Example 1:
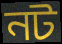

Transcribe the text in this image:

নট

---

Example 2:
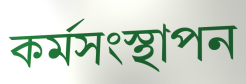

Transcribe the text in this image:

কৰ্মসংস্থাপন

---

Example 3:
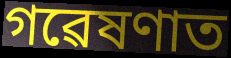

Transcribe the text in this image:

গৱেষণাত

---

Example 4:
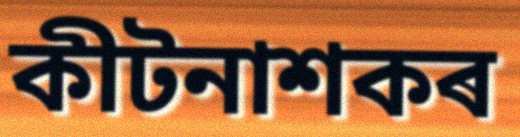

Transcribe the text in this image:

কীটনাশকৰ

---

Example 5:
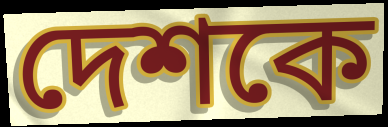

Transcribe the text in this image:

দেশকে